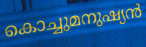
കൊച്ചുമനുഷ്യൻ